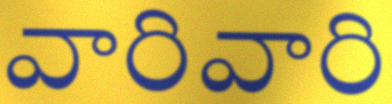
వారివారి